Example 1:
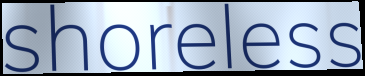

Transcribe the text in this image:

shoreless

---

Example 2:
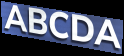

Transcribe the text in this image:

ABCDA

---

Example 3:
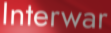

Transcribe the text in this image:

Interwar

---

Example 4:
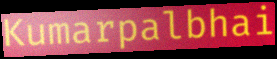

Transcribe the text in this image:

Kumarpalbhai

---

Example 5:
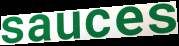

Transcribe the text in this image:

sauces